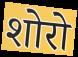
शोरो